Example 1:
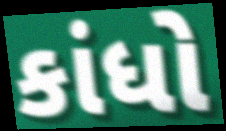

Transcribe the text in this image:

કાંધો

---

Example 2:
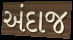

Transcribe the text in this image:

અંદાજ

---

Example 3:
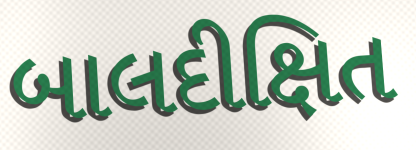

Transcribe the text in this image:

બાલદીક્ષિત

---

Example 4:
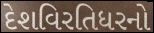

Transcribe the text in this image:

દેશવિરતિધરનો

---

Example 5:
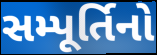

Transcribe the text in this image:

સમ્પૂર્તિનો